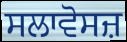
ਸਲਾਵੋਸਜ਼